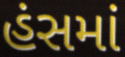
હંસમાં